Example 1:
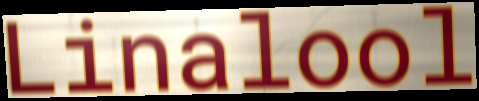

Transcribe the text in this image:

Linalool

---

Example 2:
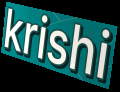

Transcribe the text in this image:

krishi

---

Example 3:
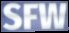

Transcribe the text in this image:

SFW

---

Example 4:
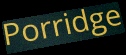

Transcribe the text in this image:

Porridge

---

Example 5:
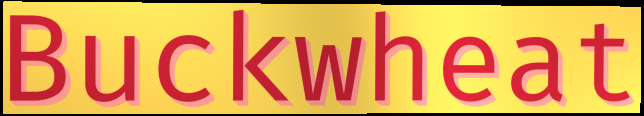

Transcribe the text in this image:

Buckwheat